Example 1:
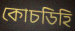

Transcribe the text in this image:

কোচডিহি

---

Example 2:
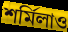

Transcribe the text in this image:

শর্মিলাও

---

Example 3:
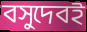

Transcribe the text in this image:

বসুদেবই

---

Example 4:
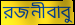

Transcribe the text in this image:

রজনীবাবু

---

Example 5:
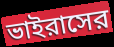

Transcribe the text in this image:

ভাইরাসের